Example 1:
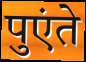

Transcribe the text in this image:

पुएंते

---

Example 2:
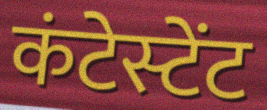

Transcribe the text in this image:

कंटेस्‍टेंट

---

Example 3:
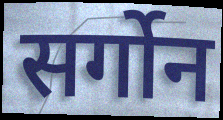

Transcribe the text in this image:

सर्गोन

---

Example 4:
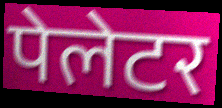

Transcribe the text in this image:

पेलेटर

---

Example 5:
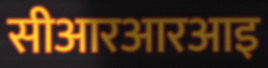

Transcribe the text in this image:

सीआरआरआइ